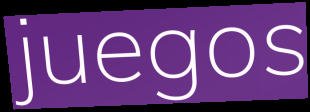
juegos